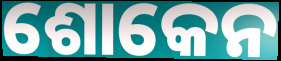
ଶୋକେନ